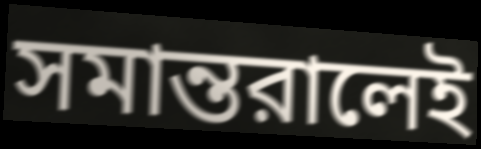
সমান্তরালেই